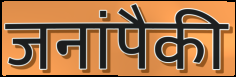
जनांपैकी